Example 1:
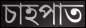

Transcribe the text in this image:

চাহপাত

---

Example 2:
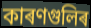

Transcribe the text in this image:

কাৰণগুলিৰ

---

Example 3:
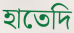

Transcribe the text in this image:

হাতেদি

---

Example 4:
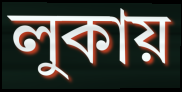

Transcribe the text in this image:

লুকায়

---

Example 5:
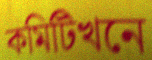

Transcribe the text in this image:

কমিটিখনে